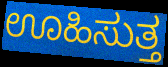
ಊಹಿಸುತ್ತ